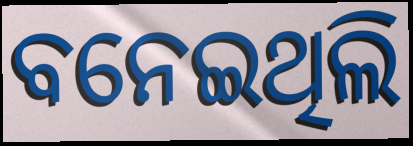
ବନେଇଥିଲି